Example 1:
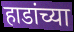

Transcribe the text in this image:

हाडांच्या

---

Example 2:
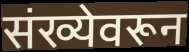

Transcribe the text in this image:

संख्येवरून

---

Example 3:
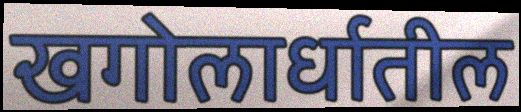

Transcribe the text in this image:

खगोलार्धातील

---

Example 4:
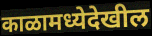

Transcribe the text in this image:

काळामध्येदेखील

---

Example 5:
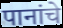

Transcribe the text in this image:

पानांचे